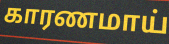
காரணமாய்